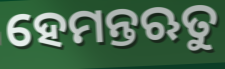
ହେମନ୍ତଋତୁ